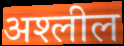
अश्लील